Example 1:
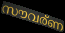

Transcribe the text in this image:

സൗവര്ണ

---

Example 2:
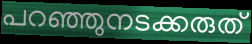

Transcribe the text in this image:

പറഞ്ഞുനടക്കരുത്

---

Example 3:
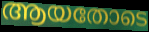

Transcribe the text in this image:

ആയതോടെ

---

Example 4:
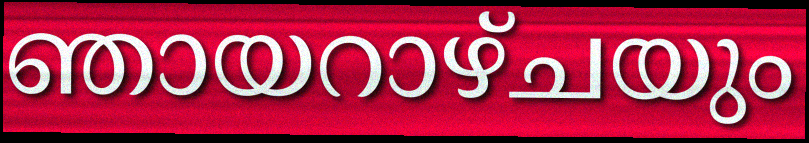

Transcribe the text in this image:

ഞായറാഴ്ചയും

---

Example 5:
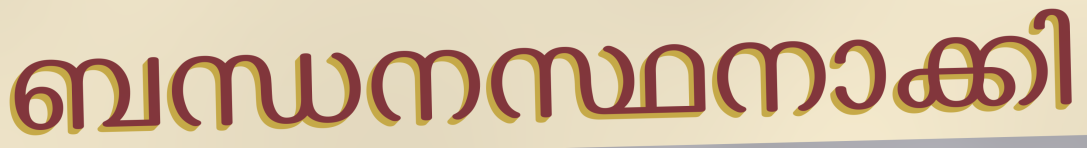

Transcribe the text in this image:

ബന്ധനസ്ഥനാക്കി